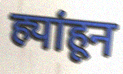
ह्यांहून